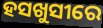
ହସଖୁସୀରେ